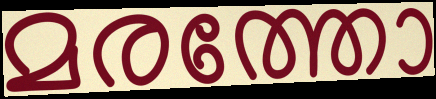
മരത്തോ